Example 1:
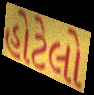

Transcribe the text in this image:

હોટેલો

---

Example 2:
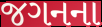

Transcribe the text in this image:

જગનના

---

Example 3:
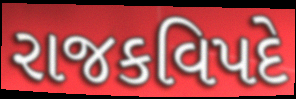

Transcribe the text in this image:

રાજકવિપદે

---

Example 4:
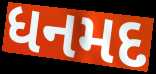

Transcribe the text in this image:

ધનમદ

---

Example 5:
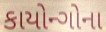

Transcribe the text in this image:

કાયોન્ગોના